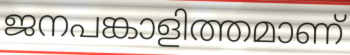
ജനപങ്കാളിത്തമാണ്